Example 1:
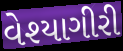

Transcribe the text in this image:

વેશ્યાગીરી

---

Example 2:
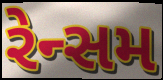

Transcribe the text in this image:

રેન્સમ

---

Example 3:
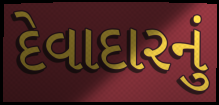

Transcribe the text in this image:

દેવાદારનું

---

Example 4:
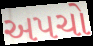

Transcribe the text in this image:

અપચો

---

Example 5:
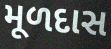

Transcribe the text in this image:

મૂળદાસ